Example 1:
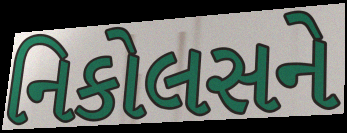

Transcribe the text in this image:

નિકોલસને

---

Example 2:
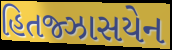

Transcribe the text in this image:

હિતજ્ઝાસયેન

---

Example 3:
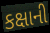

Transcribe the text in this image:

કક્ષાની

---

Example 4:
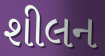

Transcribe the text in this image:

શીલન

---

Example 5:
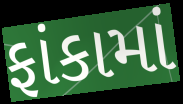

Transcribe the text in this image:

ફાંકામાં